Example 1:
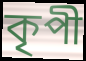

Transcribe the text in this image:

কৃপী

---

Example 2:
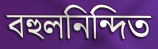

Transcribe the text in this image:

বহুলনিন্দিত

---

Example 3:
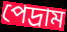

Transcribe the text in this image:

পেদ্রাম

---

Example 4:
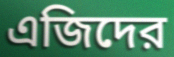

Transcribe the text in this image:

এজিদের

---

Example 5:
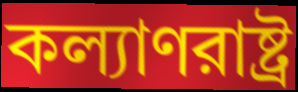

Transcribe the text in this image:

কল্যাণরাষ্ট্র